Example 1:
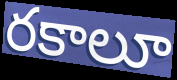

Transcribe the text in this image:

రకాలూ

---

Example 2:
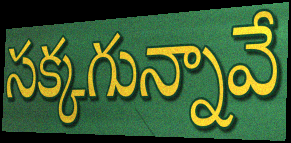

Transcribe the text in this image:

సక్కగున్నావే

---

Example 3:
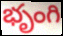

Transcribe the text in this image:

భృంగి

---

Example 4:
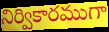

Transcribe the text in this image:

నిర్వికారముగా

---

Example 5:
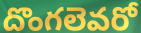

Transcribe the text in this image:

దొంగలెవరో